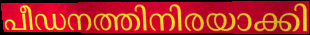
പീഡനത്തിനിരയാക്കി